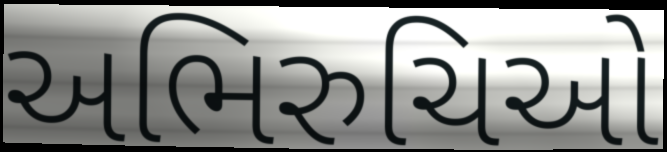
અભિરુચિઓ